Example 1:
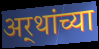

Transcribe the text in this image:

अर्थांच्या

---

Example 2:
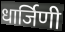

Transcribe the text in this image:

धार्जिणी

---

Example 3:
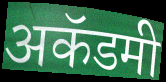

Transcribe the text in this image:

अकॅडमी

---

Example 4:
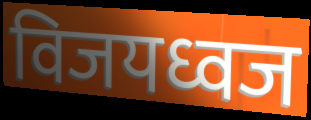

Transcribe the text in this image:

विजयध्वज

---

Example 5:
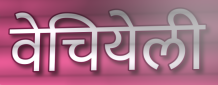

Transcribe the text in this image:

वेचियेली